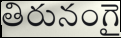
తిరునంగై